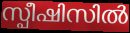
സ്പീഷിസിൽ